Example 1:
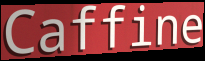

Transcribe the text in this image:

Caffine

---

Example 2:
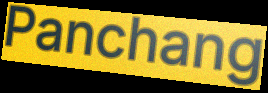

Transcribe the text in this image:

Panchang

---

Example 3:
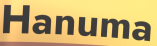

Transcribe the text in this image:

Hanuma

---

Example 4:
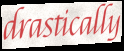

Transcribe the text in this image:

drastically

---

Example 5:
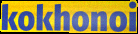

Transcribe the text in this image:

kokhonoi